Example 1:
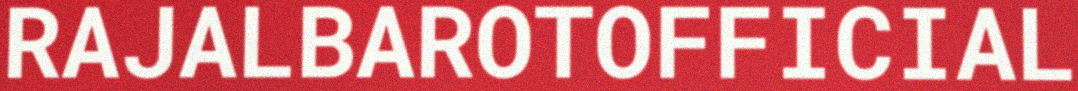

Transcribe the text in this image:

RAJALBAROTOFFICIAL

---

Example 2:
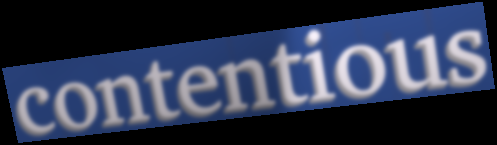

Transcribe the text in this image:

contentious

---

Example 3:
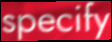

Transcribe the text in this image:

specify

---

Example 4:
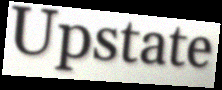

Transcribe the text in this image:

Upstate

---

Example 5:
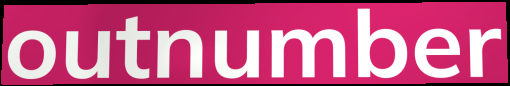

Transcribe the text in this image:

outnumber